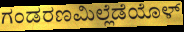
ಗಂಡರಣಮಿಲ್ಲೆಡೆಯೊಳ್